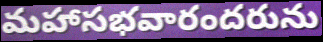
మహాసభవారందరును